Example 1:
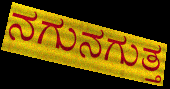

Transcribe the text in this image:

ನಗುನಗುತ್ತ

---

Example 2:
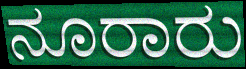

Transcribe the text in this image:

ನೂರಾರು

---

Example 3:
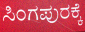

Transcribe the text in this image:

ಸಿಂಗಪುರಕ್ಕೆ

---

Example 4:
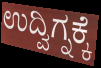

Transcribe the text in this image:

ಉದ್ವಿಗ್ನಕ್ಕೆ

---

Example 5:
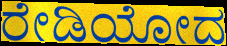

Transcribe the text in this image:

ರೇಡಿಯೋದ